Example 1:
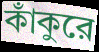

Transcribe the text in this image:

কাঁকুরে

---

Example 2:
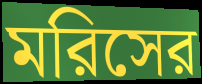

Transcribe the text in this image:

মরিসের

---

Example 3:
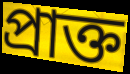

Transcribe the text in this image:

প্রাক্ত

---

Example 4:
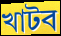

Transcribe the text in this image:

খাটব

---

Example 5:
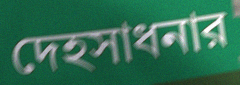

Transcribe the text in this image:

দেহসাধনার